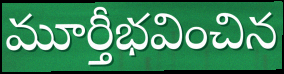
మూర్తీభవించిన